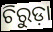
ଚିରୁଡ଼ା